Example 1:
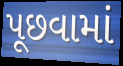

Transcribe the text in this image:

પૂછવામાં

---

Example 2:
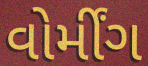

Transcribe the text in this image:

વોર્મીંગ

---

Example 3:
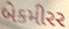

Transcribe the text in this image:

બેકમીરર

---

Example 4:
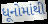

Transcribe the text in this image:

ધૂનોમાંથી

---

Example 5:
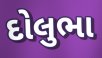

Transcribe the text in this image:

દોલુભા